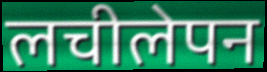
लचीलेपन